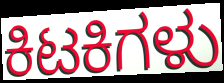
ಕಿಟಕಿಗಳು